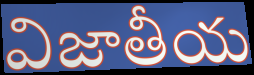
విజాతీయ